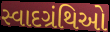
સ્વાદગ્રંથિઓ